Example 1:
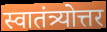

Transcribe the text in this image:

स्वातंत्र्योत्तर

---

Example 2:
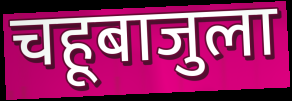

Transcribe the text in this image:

चहूबाजुला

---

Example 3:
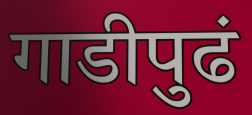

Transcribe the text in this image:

गाडीपुढं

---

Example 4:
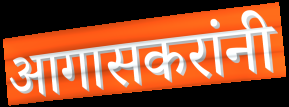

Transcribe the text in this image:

आगासकरांनी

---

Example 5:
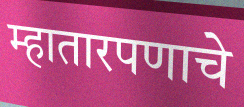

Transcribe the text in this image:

म्हातारपणाचे